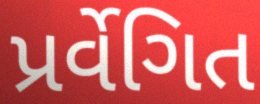
પ્રર્વેગિત